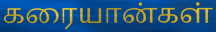
கரையான்கள்